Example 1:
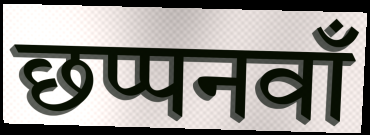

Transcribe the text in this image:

छप्पनवाँ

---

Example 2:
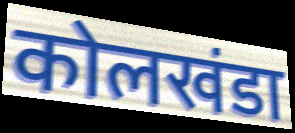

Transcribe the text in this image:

कोलखंडा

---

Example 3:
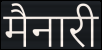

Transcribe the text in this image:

मैनारी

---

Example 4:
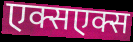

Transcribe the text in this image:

एक्सएक्स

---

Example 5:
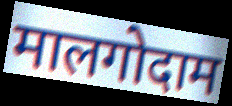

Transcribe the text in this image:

मालगोदाम